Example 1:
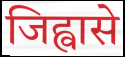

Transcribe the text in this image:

जिह्वासे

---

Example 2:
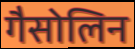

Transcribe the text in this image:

गैसोलिन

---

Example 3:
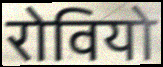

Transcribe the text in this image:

रोवियो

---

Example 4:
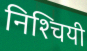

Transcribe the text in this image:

निश्चियी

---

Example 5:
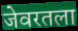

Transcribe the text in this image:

जेवरतला